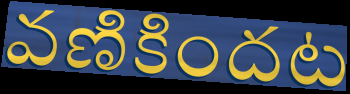
వణికిందట